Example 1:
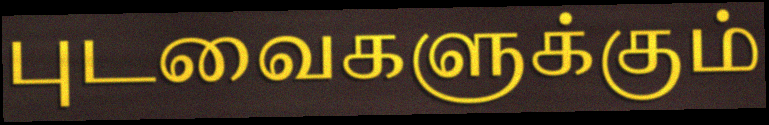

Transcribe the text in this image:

புடவைகளுக்கும்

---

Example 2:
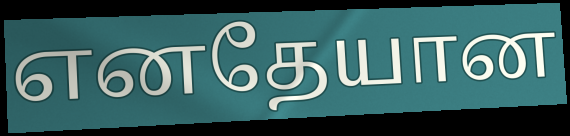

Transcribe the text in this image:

எனதேயான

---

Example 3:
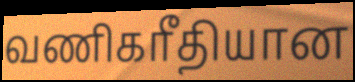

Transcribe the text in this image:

வணிகரீதியான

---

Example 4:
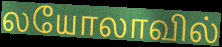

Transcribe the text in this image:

லயோலாவில்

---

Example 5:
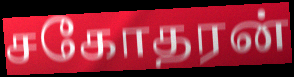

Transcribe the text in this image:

சகோதரன்